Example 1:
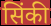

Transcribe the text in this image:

सिंकी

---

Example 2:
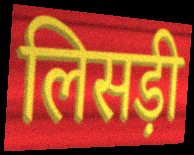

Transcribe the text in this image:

लिसड़ी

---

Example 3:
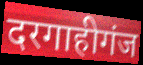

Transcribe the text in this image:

दरगाहीगंज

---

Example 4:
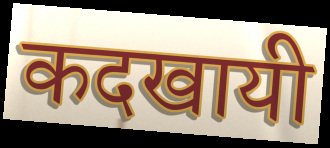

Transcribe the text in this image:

कदखायी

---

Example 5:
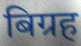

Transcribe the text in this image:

बिग्रह